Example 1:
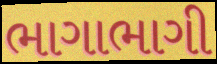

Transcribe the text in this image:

ભાગાભાગી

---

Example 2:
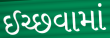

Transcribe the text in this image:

ઈચ્છવામાં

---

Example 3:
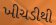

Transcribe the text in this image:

ખીચડીથી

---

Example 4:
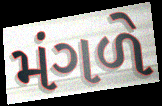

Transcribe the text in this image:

મંગળે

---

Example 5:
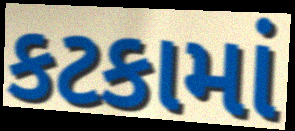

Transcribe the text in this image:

કટકામાં